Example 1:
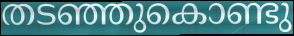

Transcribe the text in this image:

തടഞ്ഞുകൊണ്ടു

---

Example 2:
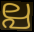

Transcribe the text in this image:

ല്പ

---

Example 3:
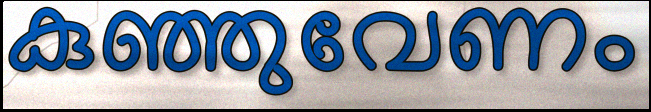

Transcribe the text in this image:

കുഞ്ഞുവേണം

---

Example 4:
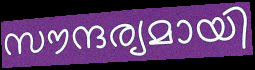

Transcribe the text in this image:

സൗന്ദര്യമായി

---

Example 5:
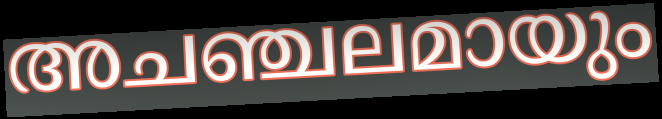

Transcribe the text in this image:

അചഞ്ചലമായും